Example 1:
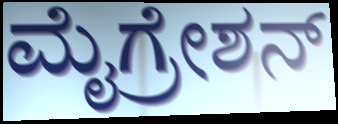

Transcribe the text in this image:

ಮೈಗ್ರೇಶನ್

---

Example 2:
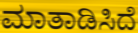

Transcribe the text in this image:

ಮಾತಾಡಿಸಿದೆ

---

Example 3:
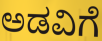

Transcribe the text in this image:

ಅಡವಿಗೆ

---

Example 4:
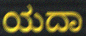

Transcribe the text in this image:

ಯದಾ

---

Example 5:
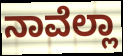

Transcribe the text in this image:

ನಾವೆಲ್ಲಾ